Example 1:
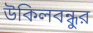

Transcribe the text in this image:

উকিলবন্ধুর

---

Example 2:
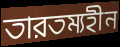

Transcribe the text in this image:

তারতম্যহীন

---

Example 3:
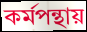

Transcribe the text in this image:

কর্মপন্থায়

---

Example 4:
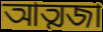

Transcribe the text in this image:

আত্মজা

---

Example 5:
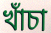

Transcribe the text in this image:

খাঁচা